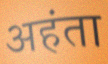
अहंता